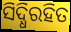
ସିଦ୍ଧିରହିତ